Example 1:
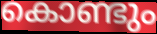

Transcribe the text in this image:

കൊണ്ടും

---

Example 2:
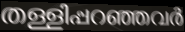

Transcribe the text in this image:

തള്ളിപ്പറഞ്ഞവർ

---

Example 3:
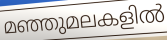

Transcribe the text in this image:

മഞ്ഞുമലകളിൽ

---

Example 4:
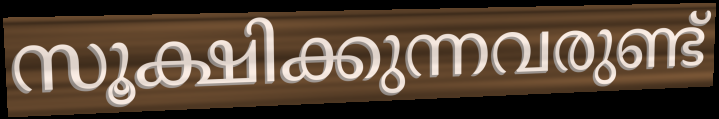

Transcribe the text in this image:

സൂക്ഷിക്കുന്നവരുണ്ട്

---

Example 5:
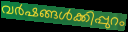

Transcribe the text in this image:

വർഷങ്ങൾക്കിപ്പുറം